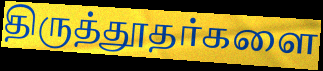
திருத்தூதர்களை